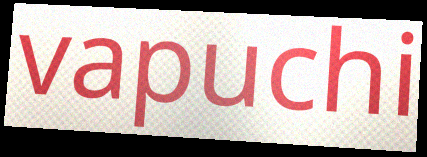
vapuchi